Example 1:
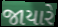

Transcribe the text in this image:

જાયારે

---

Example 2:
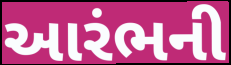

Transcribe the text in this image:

આરંભની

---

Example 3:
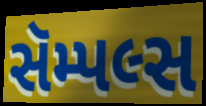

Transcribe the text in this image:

સૅમ્પલ્સ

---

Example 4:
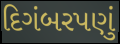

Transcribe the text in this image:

દિગંબરપણું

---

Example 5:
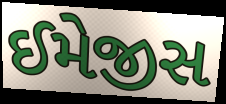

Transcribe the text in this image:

ઈમેજીસ